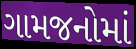
ગામજનોમાં